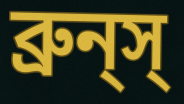
ব্রুন্‌স্